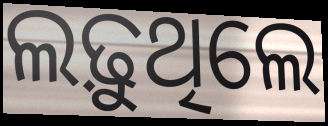
ଲଢ଼ୁଥିଲେ